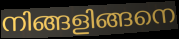
നിങ്ങളിങ്ങനെ